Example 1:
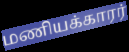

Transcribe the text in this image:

மணியக்காரர்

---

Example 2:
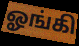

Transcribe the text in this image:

ஓங்கி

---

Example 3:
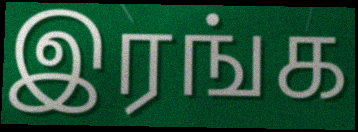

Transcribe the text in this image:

இரங்க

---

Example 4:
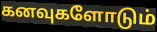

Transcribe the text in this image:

கனவுகளோடும்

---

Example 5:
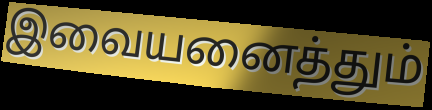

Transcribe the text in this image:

இவையனைத்தும்